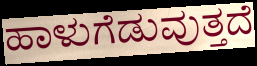
ಹಾಳುಗೆಡುವುತ್ತದೆ